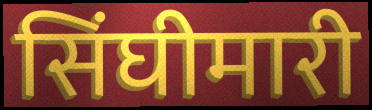
सिंघीमारी